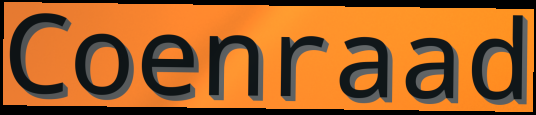
Coenraad